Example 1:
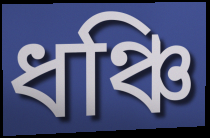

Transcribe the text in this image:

ধঞ্চি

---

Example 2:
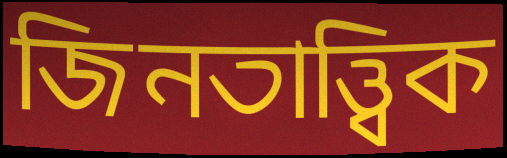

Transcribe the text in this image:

জিনতাত্ত্বিক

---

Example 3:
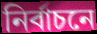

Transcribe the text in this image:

নির্বাচনে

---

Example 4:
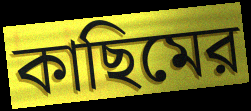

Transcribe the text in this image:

কাছিমের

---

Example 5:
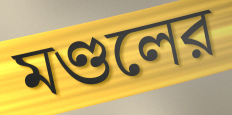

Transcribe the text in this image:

মণ্ডলের